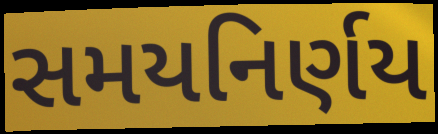
સમયનિર્ણય